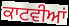
ਕਾਟਵੀਆਂ